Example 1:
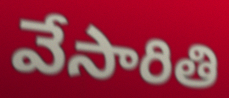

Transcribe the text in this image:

వేసారితి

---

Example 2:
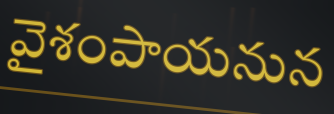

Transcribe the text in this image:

వైశంపాయనున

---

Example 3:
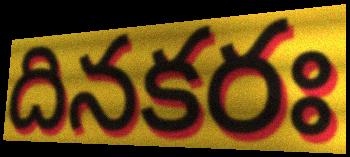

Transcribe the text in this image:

దినకరః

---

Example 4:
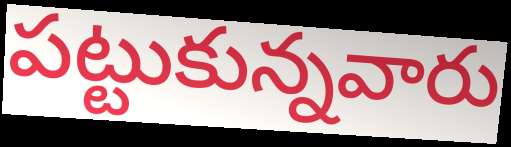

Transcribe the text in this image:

పట్టుకున్నవారు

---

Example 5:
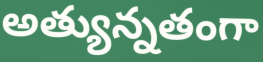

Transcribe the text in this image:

అత్యున్నతంగా